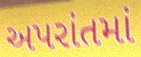
અપરાંતમાં